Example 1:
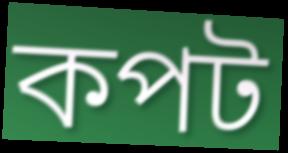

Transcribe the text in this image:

কপট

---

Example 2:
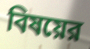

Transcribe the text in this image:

বিষয়ের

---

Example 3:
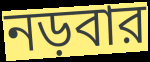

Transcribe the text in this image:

নড়বার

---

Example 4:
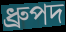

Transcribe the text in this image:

ধ্রুপদ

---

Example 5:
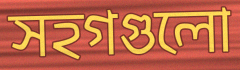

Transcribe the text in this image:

সহগগুলো